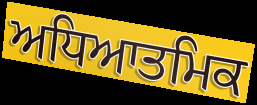
ਅਧਿਆਤਮਿਕ